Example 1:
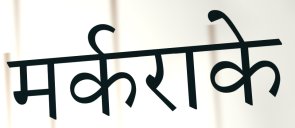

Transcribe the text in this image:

मर्कराके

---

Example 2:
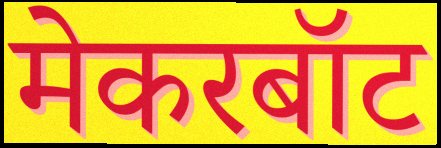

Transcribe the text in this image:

मेकरबॉट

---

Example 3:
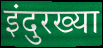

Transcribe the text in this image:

इंदुरख्या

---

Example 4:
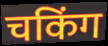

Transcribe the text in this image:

चकिंग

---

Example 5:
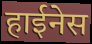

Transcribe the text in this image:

हाईनेस